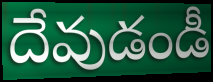
దేవుడండీ